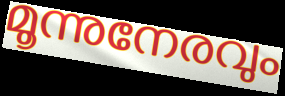
മൂന്നുനേരവും